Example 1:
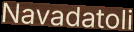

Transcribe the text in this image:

Navadatoli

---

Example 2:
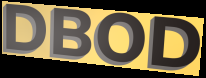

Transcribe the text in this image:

DBOD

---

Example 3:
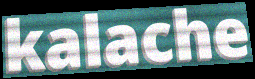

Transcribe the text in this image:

kalache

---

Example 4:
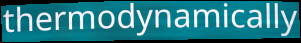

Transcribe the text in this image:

thermodynamically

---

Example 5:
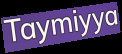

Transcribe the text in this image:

Taymiyya